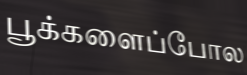
பூக்களைப்போல